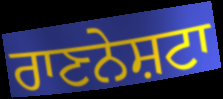
ਰਾਣਨੇਸ਼ਟਾ